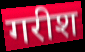
गरीश